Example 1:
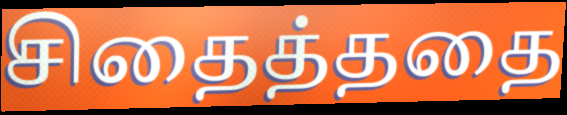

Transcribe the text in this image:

சிதைத்ததை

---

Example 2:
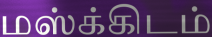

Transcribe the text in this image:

மஸ்க்கிடம்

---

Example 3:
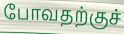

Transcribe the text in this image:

போவதற்குச்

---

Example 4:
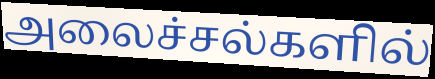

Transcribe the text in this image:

அலைச்சல்களில்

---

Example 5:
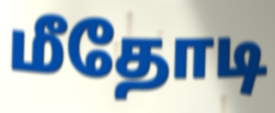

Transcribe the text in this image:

மீதோடி